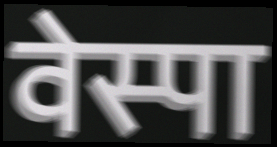
वेस्पा